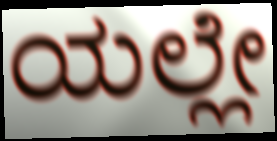
ಯಲ್ಲೇ